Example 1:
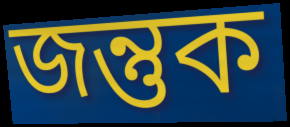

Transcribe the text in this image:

জন্তুক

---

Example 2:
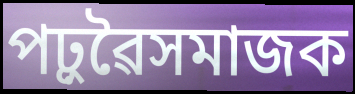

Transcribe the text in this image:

পঢ়ুৱৈসমাজক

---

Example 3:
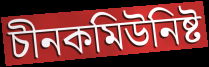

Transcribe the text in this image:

চীনকমিউনিষ্ট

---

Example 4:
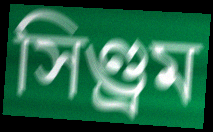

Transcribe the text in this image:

সিণ্ড্ৰম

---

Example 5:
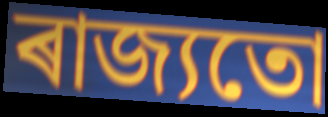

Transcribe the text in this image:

ৰাজ্যতো